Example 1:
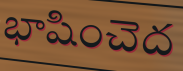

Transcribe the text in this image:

భాషించెద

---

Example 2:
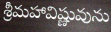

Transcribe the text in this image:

శ్రీమహావిష్ణువును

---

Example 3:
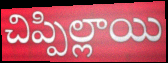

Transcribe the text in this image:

చిప్పిల్లాయి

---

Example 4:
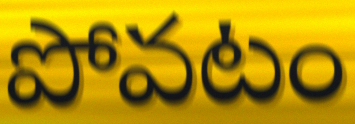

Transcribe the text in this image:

పోవటం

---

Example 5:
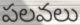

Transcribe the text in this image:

పలవలు